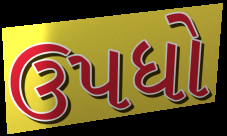
ઉપધો